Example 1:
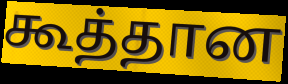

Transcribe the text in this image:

கூத்தான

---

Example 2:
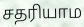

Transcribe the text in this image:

சதரியாம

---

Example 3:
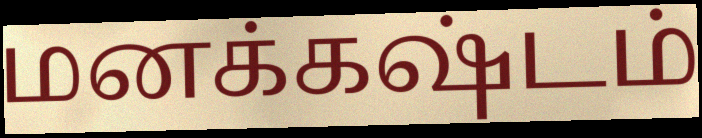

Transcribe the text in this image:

மனக்கஷ்டம்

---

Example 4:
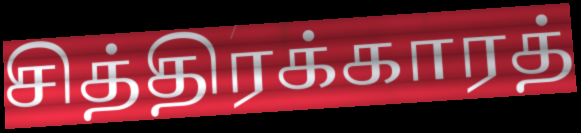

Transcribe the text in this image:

சித்திரக்காரத்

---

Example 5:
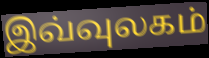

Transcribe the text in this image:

இவ்வுலகம்